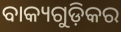
ବାକ୍ୟଗୁଡ଼ିକର